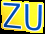
ZU